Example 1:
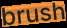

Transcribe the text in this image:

brush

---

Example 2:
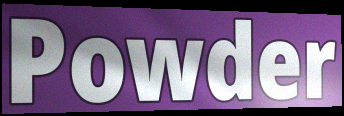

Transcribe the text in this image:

Powder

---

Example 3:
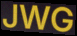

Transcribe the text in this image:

JWG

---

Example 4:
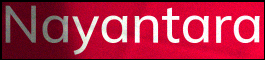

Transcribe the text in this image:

Nayantara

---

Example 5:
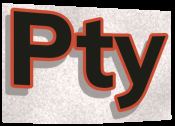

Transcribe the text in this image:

Pty